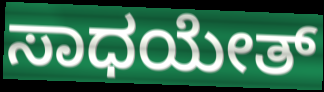
ಸಾಧಯೇತ್